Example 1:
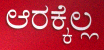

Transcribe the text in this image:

ಆರಕ್ಕೆಲ್ಲ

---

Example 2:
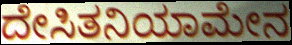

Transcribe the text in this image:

ದೇಸಿತನಿಯಾಮೇನ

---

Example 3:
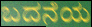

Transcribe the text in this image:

ಬದನೆಯ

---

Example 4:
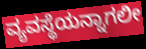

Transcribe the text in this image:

ವ್ಯವಸ್ಥೆಯನ್ನಾಗಲೀ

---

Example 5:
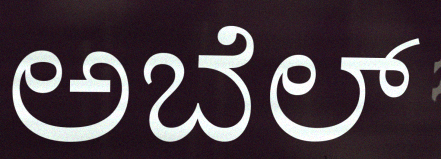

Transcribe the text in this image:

ಅಬೆಲ್